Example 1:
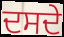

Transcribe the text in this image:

ਦਸਦੇ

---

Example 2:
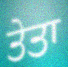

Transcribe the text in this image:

ਤੇਤਾ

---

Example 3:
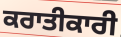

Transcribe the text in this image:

ਕਰਾਤੀਕਾਰੀ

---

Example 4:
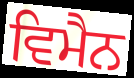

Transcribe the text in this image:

ਵਿਮੈਨ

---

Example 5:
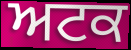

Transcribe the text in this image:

ਅਟਕ